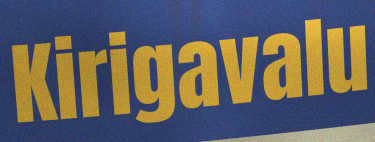
Kirigavalu